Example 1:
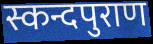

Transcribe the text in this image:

स्कन्दपुराण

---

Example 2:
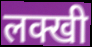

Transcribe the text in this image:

लक्खी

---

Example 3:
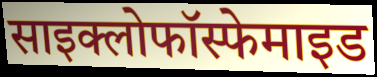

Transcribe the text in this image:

साइक्लोफॉस्फेमाइड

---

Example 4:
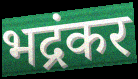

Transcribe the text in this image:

भद्रंकर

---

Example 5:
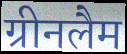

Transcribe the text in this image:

ग्रीनलैम